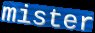
mister